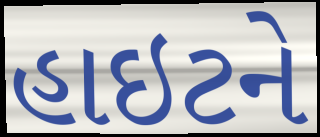
હાઇટને